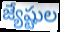
జ్యేష్టుల